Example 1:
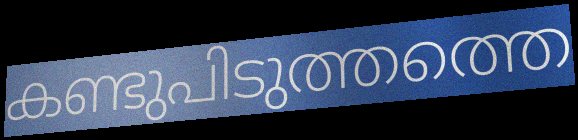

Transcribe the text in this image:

കണ്ടുപിടുത്തത്തെ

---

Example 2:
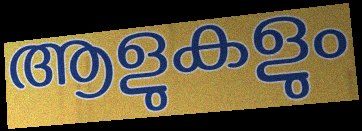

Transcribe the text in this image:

ആളുകളും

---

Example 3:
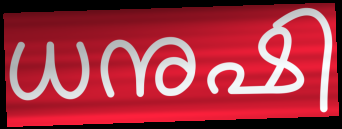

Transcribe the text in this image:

ധനുഷി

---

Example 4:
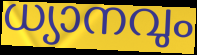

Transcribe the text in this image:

ധ്യാനവും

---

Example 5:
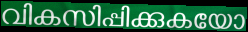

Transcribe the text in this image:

വികസിപ്പിക്കുകയോ